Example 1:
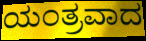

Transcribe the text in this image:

ಯಂತ್ರವಾದ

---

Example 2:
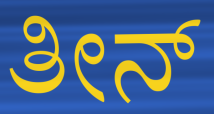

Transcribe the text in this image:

ತೀನ್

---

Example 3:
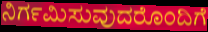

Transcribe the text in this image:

ನಿರ್ಗಮಿಸುವುದರೊಂದಿಗೆ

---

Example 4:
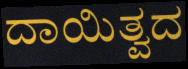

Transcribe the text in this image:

ದಾಯಿತ್ವದ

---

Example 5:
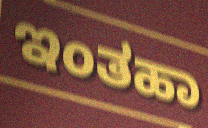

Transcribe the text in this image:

ಇಂತಹಾ